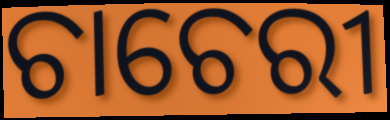
ଚାଚେରୀ